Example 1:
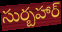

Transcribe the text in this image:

సుర్బహార్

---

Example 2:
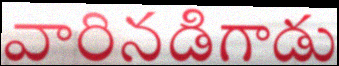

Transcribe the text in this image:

వారినడిగాడు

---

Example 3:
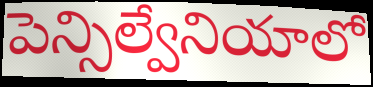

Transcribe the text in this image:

పెన్సిల్వేనియాలో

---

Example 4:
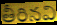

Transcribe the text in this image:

తీరినవి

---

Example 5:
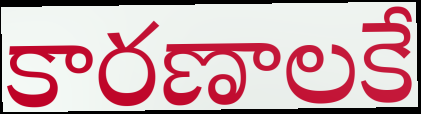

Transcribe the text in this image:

కారణాలకే